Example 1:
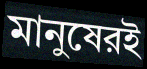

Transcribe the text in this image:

মানুষেরই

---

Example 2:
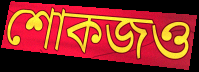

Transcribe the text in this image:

শোকজও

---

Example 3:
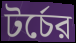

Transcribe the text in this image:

টর্চের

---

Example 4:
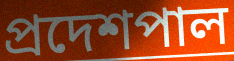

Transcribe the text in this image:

প্রদেশপাল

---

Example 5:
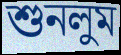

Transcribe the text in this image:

শুনলুম